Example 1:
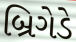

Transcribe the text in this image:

બ્રિગેડે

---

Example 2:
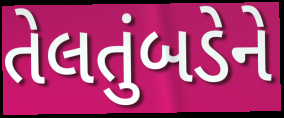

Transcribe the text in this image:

તેલતુંબડેને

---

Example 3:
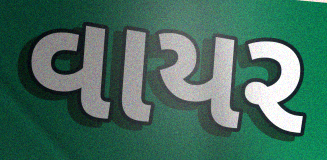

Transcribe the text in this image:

વાયર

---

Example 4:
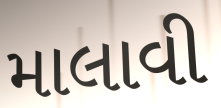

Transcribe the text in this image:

માલાવી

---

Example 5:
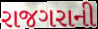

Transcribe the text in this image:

રાજગરાની